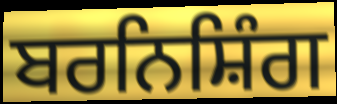
ਬਰਨਿਸ਼ਿੰਗ